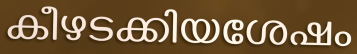
കീഴടക്കിയശേഷം